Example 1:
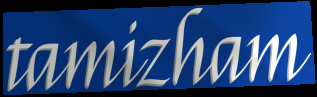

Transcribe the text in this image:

tamizham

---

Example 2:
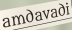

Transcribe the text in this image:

amdavadi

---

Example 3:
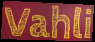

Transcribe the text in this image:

Vahli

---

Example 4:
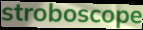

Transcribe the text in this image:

stroboscope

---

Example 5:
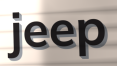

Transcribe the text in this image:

jeep